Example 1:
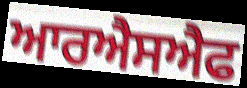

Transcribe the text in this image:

ਆਰਐਸਐਫ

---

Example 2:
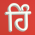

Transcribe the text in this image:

ਹਿੰ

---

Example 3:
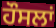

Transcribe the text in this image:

ਹੌਸਲਾਂ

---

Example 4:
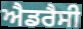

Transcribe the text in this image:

ਐਡਰੈਸੀ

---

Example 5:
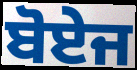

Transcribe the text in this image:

ਬੋਏਜ